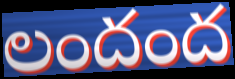
లందంద